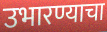
उभारण्याचा